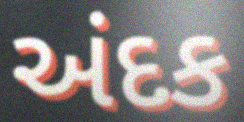
અંદક